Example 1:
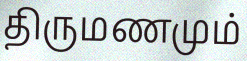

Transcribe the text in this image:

திருமணமும்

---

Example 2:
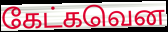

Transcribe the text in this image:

கேட்கவென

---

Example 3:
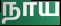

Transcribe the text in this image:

நாய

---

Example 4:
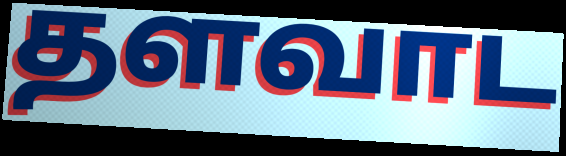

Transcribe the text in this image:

தளவாட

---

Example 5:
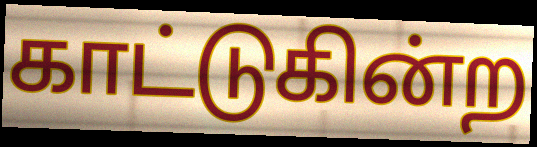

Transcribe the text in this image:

காட்டுகின்ற